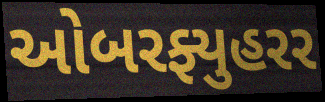
ઓબરફ્યુહરર